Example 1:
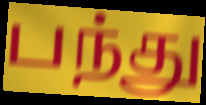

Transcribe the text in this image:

பந்து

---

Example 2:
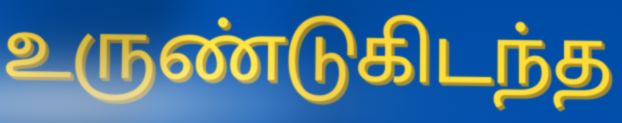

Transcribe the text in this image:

உருண்டுகிடந்த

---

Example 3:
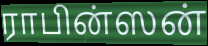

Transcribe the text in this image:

ராபின்ஸன்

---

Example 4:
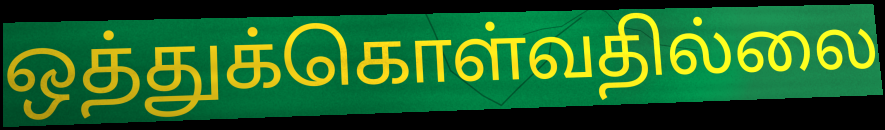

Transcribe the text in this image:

ஒத்துக்கொள்வதில்லை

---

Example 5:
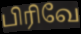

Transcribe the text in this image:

பிரிவே